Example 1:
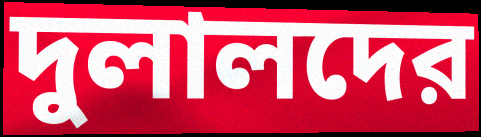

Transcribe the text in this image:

দুলালদের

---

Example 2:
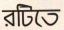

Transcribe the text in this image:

রটিতে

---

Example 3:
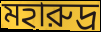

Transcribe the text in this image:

মহারুদ্র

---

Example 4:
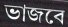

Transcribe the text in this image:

ভাজবে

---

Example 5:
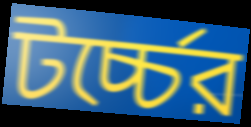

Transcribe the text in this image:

টর্চ্চের